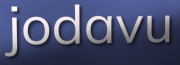
jodavu